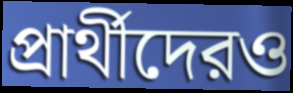
প্রার্থীদেরও